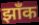
झाँक